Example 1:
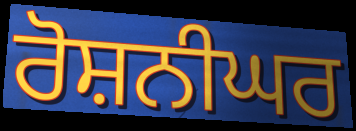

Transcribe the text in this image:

ਰੋਸ਼ਨੀਘਰ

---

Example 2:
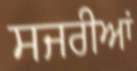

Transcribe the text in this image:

ਸਜਰੀਆਂ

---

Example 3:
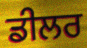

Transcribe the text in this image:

ਡੀਲਰ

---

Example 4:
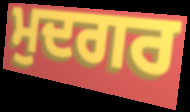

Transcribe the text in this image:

ਮੁਦਗਰ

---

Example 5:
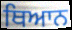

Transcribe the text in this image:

ਥਿਆਨ